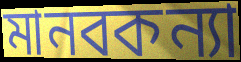
মানবকন্যা